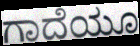
ಗಾದೆಯೂ